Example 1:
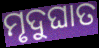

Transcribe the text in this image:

ମୃଦୁଘାତ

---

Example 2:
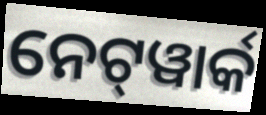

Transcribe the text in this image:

ନେଟ୍‌ୱାର୍କ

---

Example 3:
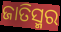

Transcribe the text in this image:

ଜାତିସ୍ମର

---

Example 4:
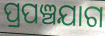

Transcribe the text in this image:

ପ୍ରପଞ୍ଚଯାଗ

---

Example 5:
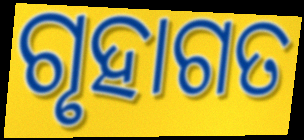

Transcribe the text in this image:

ଗୃହାଗତ